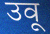
उवू